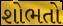
શોભતો